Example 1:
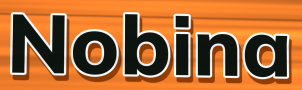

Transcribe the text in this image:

Nobina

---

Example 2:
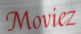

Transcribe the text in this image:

Moviez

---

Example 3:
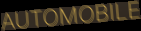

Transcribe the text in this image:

AUTOMOBILE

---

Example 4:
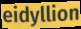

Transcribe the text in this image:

eidyllion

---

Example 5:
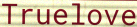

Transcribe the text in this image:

Truelove